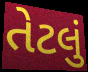
તેટલું